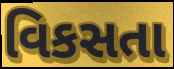
વિકસતા